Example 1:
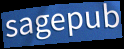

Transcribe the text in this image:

sagepub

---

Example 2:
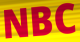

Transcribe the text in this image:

NBC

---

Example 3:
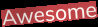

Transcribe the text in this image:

Awesome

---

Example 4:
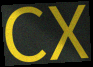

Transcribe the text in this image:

CX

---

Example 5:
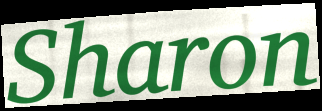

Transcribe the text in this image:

Sharon